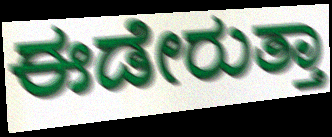
ಈಡೇರುತ್ತಾ